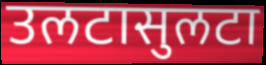
उलटासुलटा